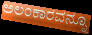
ಅಲಂಕಾರವನ್ನೂ